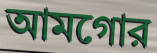
আমগোর